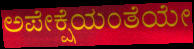
ಅಪೇಕ್ಷೆಯಂತೆಯೇ